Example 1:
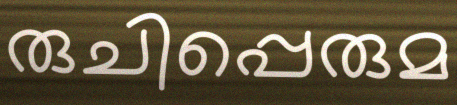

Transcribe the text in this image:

രുചിപ്പെരുമ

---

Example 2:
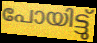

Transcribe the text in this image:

പോയിട്ടു്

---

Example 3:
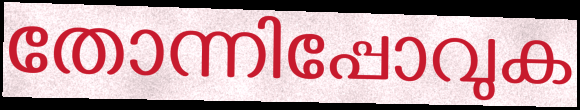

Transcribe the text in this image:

തോന്നിപ്പോവുക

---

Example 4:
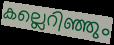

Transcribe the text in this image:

കല്ലെറിഞ്ഞും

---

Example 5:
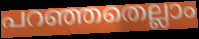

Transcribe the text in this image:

പറഞ്ഞതെല്ലാം